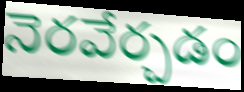
నెరవేర్చడం